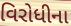
વિરોધીના